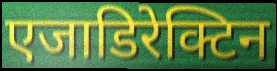
एजाडिरेक्टिन